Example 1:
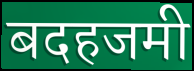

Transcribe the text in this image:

बदहजमी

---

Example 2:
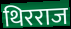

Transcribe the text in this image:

थिरराज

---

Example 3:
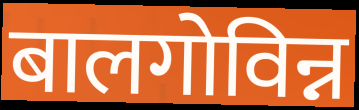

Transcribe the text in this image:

बालगोविन्न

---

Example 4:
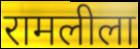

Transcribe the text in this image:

रामलीला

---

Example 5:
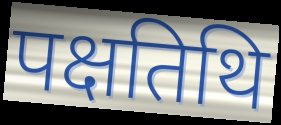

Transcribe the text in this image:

पक्षतिथि